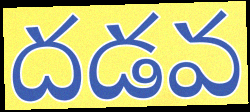
దడవ